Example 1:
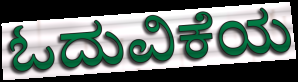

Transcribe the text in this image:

ಓದುವಿಕೆಯ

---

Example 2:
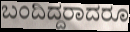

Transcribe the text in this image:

ಬಂದಿದ್ದರಾದರೂ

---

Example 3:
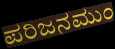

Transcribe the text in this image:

ಪರಿಜನಮುಂ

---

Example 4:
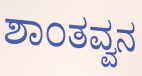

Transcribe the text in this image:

ಶಾಂತವ್ವನ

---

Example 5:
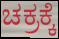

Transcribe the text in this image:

ಚಕ್ರಕ್ಕೆ